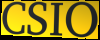
CSIO